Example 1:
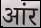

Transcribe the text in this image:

आंर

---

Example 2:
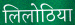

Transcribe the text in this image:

लिलोठिया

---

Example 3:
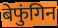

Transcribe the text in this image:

बेफुंगिन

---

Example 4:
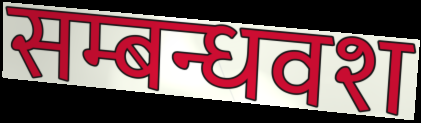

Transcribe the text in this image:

सम्बन्धवश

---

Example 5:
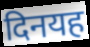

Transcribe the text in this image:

दिनयह